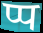
प्प